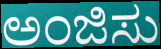
ಅಂಜಿಸು